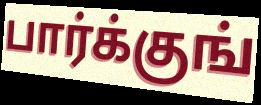
பார்க்குங்